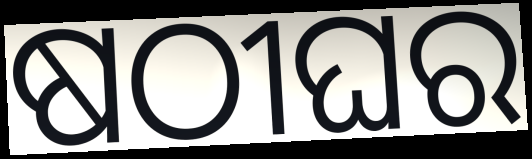
ଷଠୀଘର